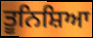
ਤੂਨਿਸ਼ਿਆ